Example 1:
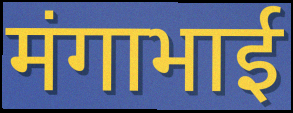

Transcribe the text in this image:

मंगाभाई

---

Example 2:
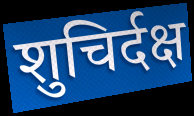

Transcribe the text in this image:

शुचिर्दक्ष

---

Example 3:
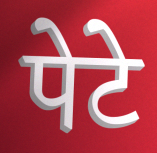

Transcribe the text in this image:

पेटे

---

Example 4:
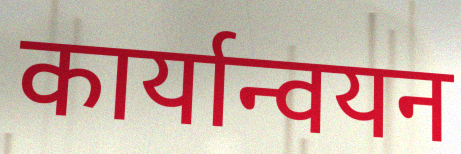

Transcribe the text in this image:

कार्यान्वयन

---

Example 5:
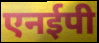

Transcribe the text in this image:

एनईपी